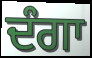
ਦੰਗਾ